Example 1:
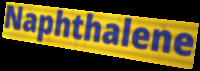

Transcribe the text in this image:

Naphthalene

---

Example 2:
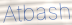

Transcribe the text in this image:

Atbash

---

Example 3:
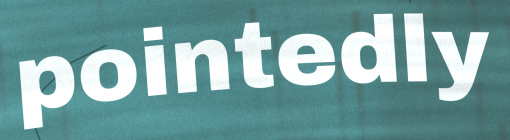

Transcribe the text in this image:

pointedly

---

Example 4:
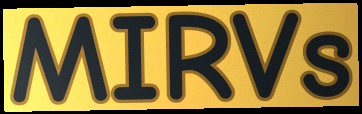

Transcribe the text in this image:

MIRVs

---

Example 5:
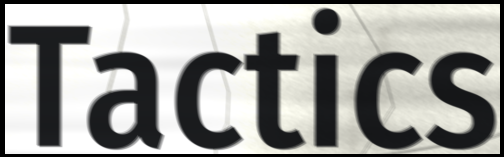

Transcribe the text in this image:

Tactics